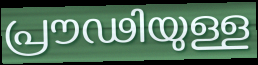
പ്രൗഢിയുള്ള